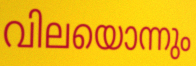
വിലയൊന്നും